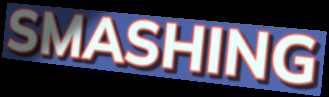
SMASHING